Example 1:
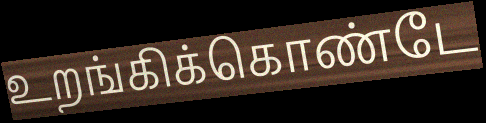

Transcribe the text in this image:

உறங்கிக்கொண்டே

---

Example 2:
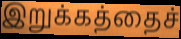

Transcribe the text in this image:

இறுக்கத்தைச்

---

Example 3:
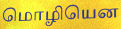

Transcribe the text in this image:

மொழியென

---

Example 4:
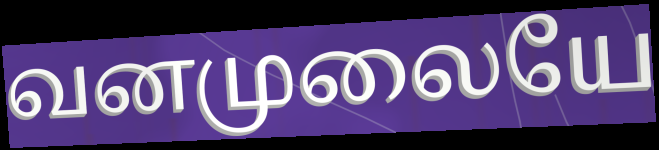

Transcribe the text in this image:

வனமுலையே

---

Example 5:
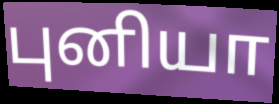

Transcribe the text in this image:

புனியா